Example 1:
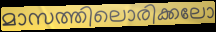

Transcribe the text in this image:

മാസത്തിലൊരിക്കലോ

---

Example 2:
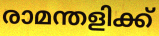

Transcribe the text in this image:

രാമന്തളിക്ക്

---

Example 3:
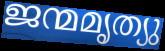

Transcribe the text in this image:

ജന്മമൃത്യു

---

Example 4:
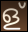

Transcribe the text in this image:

ള്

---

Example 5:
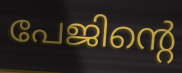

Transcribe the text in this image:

പേജിന്റെ